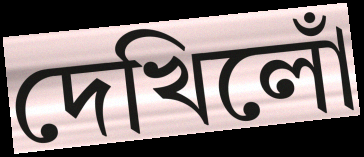
দেখিলোঁ